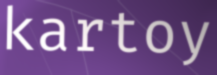
kartoy